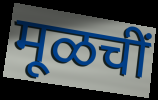
मूळचीं